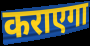
कराएगा